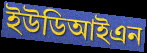
ইউডিআইএন